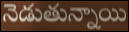
నెడుతున్నాయి